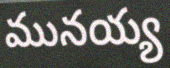
మునయ్య